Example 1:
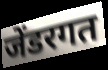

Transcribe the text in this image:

जेंडरगत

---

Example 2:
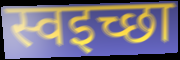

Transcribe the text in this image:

स्वइच्छा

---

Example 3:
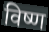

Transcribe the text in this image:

विष्ण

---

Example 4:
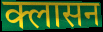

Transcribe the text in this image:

क्लासन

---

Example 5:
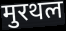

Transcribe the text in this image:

मुरथल